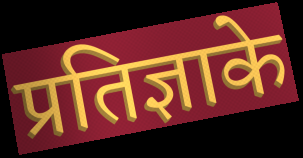
प्रतिज्ञाके